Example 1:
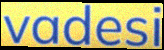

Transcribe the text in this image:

vadesi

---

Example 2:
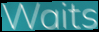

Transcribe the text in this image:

Waits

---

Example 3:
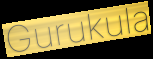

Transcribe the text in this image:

Gurukula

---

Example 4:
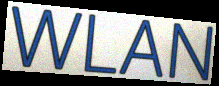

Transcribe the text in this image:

WLAN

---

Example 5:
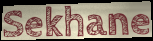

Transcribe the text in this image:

Sekhane